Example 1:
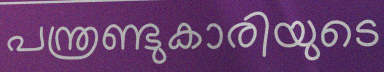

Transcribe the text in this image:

പന്ത്രണ്ടുകാരിയുടെ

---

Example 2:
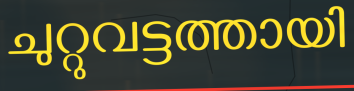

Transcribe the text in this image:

ചുറ്റുവട്ടത്തായി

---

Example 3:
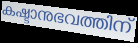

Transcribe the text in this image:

കഷ്ടാനുഭവത്തിന്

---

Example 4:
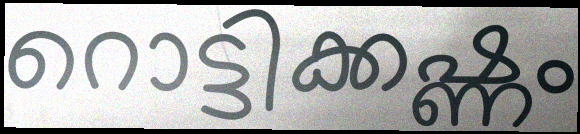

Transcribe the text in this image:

റൊട്ടിക്കഷ്ണം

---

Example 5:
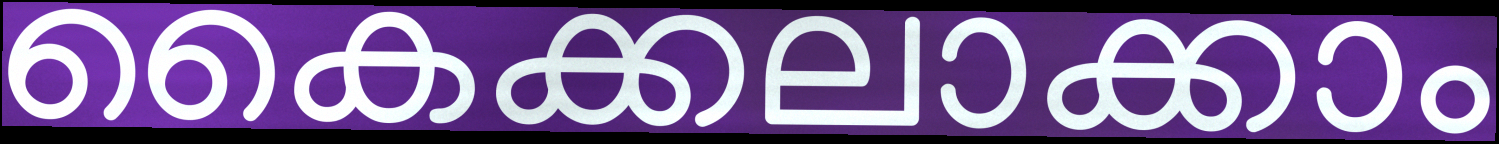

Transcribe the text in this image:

കൈക്കലാക്കാം